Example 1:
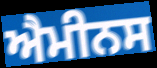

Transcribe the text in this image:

ਐਮੀਨਸ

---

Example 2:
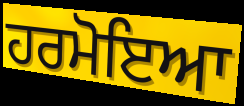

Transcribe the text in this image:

ਹਰਮੋਇਆ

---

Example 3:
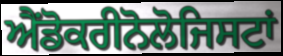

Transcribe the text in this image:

ਐਂਡੋਕਰੀਨੋਲੋਜਿਸਟਾਂ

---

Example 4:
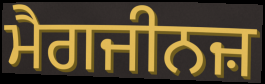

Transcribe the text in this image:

ਮੈਗਜੀਨਜ਼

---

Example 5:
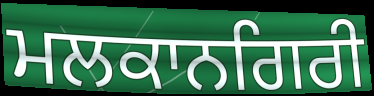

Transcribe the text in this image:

ਮਲਕਾਨਗਿਰੀ